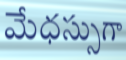
మేధస్సుగా